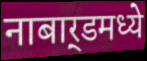
नाबार्डमध्ये